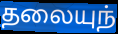
தலையுந்